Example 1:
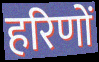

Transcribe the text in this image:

हरिणों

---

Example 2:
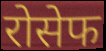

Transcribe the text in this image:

रोसेफ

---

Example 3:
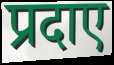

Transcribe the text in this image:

प्रदाए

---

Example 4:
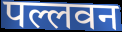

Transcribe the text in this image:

पल्लवन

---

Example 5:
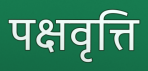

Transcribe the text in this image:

पक्षवृत्ति